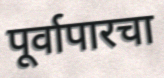
पूर्वापारचा